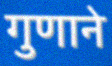
गुणाने